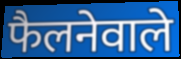
फैलनेवाले